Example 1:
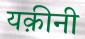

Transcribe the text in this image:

यक़ीनी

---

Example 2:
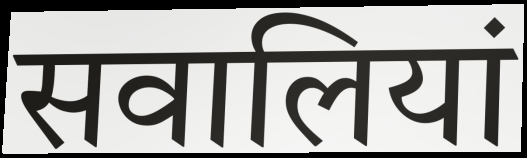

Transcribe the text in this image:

सवालियां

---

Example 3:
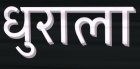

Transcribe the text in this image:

धुराला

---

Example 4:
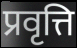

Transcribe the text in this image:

प्रवृत्ति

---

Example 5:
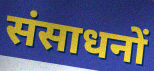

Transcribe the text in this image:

संसाधनों